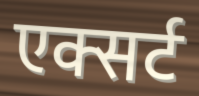
एक्सर्ट